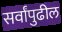
सर्वांपुढील